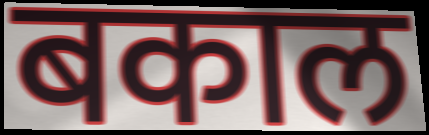
बकाल